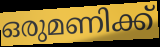
ഒരുമണിക്ക്